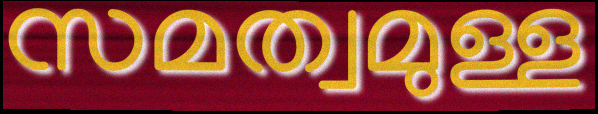
സമത്വമുള്ള